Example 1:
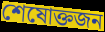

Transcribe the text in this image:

শেষোক্তজন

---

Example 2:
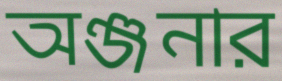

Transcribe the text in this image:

অঞ্জনার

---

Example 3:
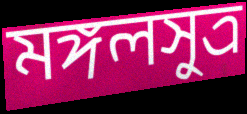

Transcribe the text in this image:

মঙ্গলসুত্র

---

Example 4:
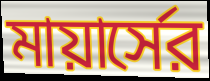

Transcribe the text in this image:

মায়ার্সের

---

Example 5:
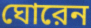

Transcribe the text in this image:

ঘোরেন